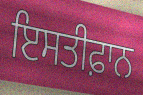
ਇਸਤੀਫ਼ਾਨ